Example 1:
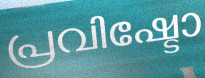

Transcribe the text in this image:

പ്രവിഷ്ടോ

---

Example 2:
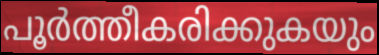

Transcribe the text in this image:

പൂർത്തീകരിക്കുകയും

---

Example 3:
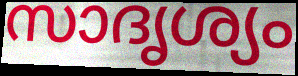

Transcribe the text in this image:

സാദൃശ്യം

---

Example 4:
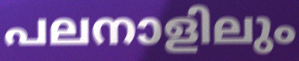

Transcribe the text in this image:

പലനാളിലും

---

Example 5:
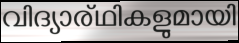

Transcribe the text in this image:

വിദ്യാര്ഥികളുമായി